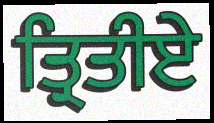
ਤ੍ਰਿਤੀਏ